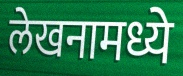
लेखनामध्ये